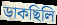
ডাকছিলি